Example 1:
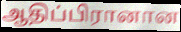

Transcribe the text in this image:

ஆதிப்பிரானான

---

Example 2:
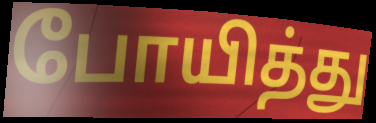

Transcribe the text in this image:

போயித்து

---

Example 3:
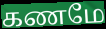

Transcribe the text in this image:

கணமே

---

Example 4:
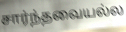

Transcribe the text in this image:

சார்ந்தவையல்ல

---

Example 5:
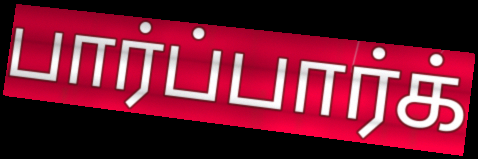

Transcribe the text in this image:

பார்ப்பார்க்